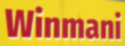
Winmani